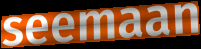
seemaan